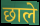
छाले